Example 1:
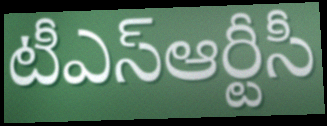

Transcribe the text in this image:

టీఎస్ఆర్టీసీ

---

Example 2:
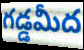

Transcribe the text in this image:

గడ్డమీద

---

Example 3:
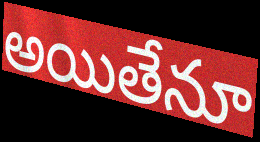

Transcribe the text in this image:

అయితేనూ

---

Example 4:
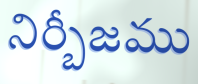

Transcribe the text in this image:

నిర్బీజము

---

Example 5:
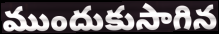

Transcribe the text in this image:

ముందుకుసాగిన